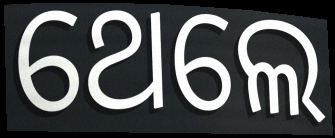
ଥେଲେ